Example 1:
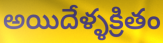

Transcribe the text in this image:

అయిదేళ్ళక్రితం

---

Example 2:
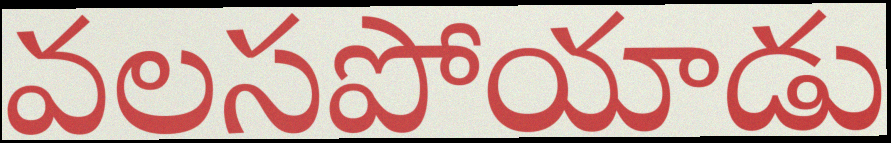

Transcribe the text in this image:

వలసపోయాడు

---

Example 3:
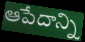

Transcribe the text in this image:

ఆపేదాన్ని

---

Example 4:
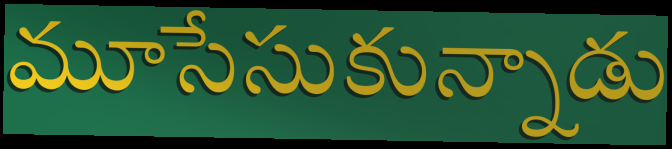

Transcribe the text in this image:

మూసేసుకున్నాడు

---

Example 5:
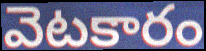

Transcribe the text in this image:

వెటకారం